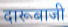
दारूबाजी